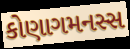
કોણાગમનસ્સ